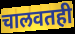
चालवतही